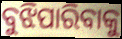
ବୁଝିପାରିବାକୁ